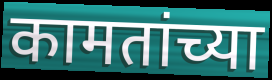
कामतांच्या